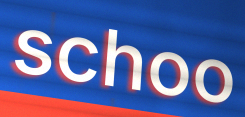
schoo